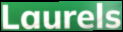
Laurels